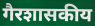
गैरशासकीय